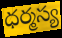
ధర్మస్య